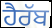
ਹੈਰੱਬ